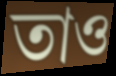
তাও